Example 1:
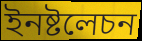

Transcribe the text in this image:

ইনষ্টলেচন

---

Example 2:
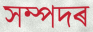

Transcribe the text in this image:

সম্পদৰ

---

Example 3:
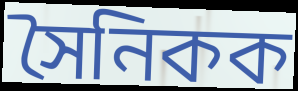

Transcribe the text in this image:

সৈনিকক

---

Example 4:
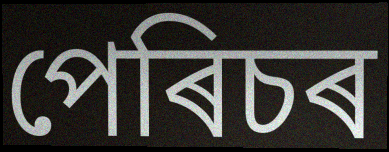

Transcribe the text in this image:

পেৰিচৰ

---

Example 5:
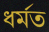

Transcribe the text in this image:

ধৰ্মত